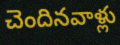
చెందినవాళ్లు